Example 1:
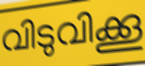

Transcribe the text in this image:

വിടുവിക്കൂ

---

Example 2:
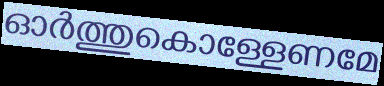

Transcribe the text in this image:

ഓർത്തുകൊള്ളേണമേ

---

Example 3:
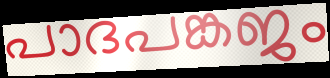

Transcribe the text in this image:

പാദപങ്കജം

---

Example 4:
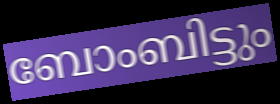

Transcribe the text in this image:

ബോംബിട്ടും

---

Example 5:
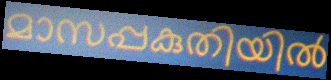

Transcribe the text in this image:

മാസപ്പകുതിയിൽ